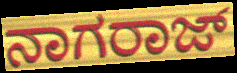
ನಾಗರಾಜ್